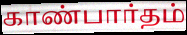
காண்பார்தம்